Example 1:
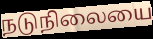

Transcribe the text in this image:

நடுநிலையை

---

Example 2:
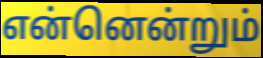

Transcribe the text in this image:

என்னென்றும்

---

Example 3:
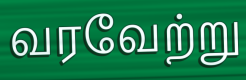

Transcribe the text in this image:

வரவேற்று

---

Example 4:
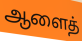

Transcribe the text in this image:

ஆளைத்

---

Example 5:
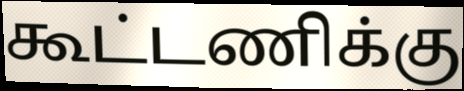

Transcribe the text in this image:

கூட்டணிக்கு